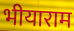
भीयाराम